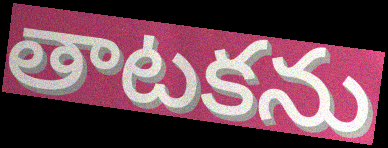
తాటకను